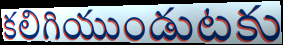
కలిగియుండుటకు